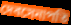
দেবসেনাপতি